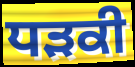
ਧੜਕੀ